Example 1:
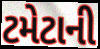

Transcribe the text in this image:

ટમેટાની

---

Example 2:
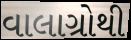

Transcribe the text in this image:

વાલાગ્રોથી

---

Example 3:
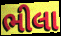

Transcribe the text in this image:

ભીલા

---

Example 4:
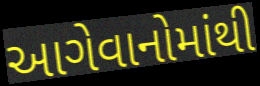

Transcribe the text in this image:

આગેવાનોમાંથી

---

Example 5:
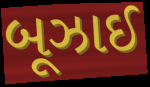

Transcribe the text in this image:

બૂઝાઈ